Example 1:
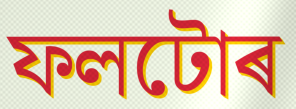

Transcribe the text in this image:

ফলটোৰ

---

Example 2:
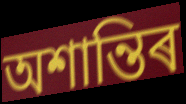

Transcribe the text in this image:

অশান্তিৰ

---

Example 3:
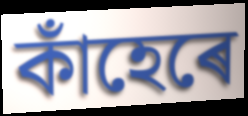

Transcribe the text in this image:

কাঁহেৰে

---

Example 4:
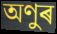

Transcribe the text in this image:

অণুৰ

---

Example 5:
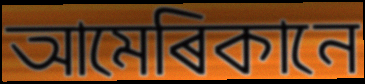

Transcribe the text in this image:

আমেৰিকানে